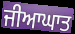
ਜੀਆਘਾਤ